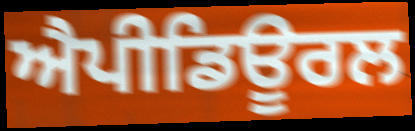
ਐਪੀਡਿਊਰਲ